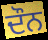
ਦੌਨ